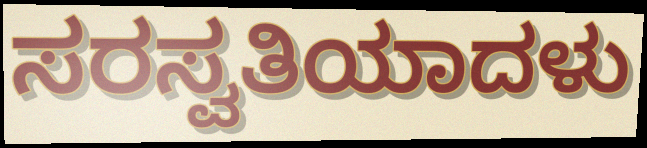
ಸರಸ್ವತಿಯಾದಳು